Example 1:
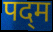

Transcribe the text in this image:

पद्‌म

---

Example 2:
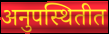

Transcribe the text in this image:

अनुपस्थितीत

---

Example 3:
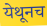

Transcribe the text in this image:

येथूनच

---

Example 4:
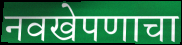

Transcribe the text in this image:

नवखेपणाचा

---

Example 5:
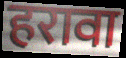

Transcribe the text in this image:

हरावा